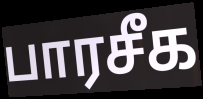
பாரசீக